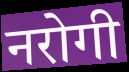
नरोगी